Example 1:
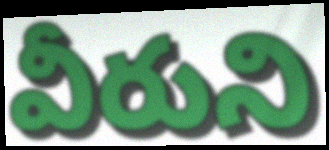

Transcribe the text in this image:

వీరుని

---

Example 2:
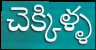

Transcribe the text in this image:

చెక్కిళ్ళ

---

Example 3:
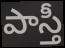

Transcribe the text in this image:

పాస్తీ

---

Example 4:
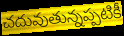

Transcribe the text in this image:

చదువుతున్నప్పటికీ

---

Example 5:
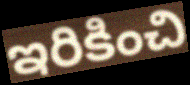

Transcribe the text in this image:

ఇరికించి